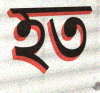
হত